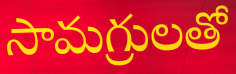
సామగ్రులతో